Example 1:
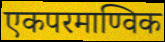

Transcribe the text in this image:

एकपरमाण्विक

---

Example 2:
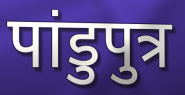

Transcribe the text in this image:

पांडुपुत्र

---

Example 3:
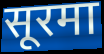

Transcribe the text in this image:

सूरमा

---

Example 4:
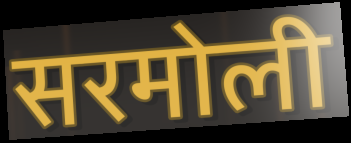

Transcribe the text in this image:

सरमोली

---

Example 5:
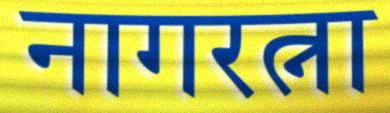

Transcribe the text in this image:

नागरत्ना